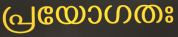
പ്രയോഗതഃ